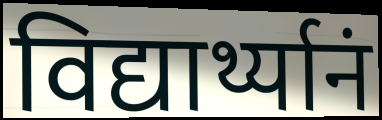
विद्यार्थ्यानं